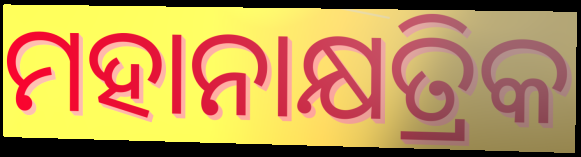
ମହାନାକ୍ଷତ୍ରିକ